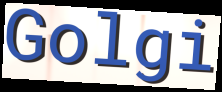
Golgi